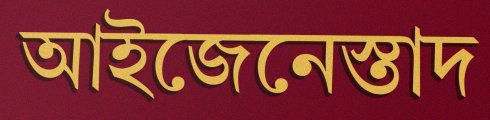
আইজেনেস্তাদ